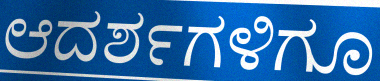
ಆದರ್ಶಗಳಿಗೂ